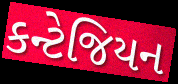
કન્ટેજિયન